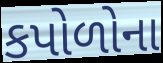
કપોળોના